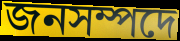
জনসম্পদে